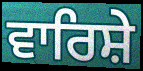
ਵਾਰਿਸ਼ੇ